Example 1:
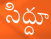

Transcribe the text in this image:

సిద్దూ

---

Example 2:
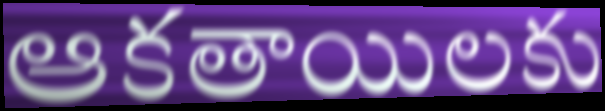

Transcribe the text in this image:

ఆకతాయిలకు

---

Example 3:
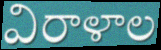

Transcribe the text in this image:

విరాళాల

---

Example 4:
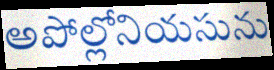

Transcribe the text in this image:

అపోల్లోనియసును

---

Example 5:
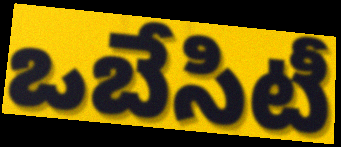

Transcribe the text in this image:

ఒబేసిటీ